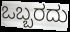
ಒಬ್ಬರದು